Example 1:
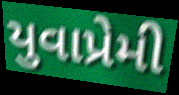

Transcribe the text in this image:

યુવાપ્રેમી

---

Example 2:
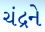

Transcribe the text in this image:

ચંદ્રને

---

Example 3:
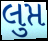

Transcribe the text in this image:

લુપ્ત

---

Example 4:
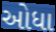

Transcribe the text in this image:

ઓધા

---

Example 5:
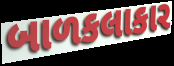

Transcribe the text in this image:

બાળકલાકાર